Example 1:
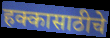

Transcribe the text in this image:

हक्कासाठीचे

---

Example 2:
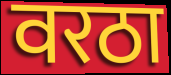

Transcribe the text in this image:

वरठा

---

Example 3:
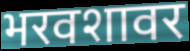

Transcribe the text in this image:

भरवशावर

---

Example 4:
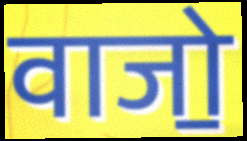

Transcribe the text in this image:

वाजो॒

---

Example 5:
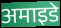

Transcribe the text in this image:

अमाइडे